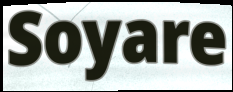
Soyare